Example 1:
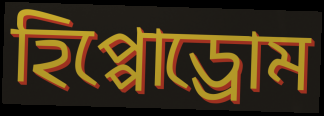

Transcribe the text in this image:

হিপ্পোড্রোম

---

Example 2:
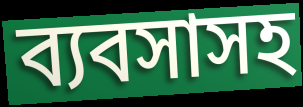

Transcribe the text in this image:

ব্যবসাসহ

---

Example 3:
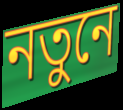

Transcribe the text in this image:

নতুনে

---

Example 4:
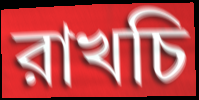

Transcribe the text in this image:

রাখচি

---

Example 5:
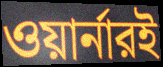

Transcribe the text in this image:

ওয়ার্নারই